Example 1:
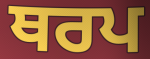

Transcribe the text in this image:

ਥਰਪ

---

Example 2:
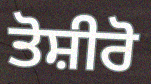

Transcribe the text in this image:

ਤੋਸ਼ੀਰੋ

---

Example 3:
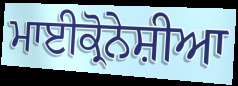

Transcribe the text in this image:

ਮਾਈਕ੍ਰੋਨੇਸ਼ੀਆ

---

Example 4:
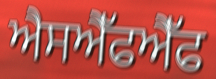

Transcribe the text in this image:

ਐਸਐੱਫਐੱਫ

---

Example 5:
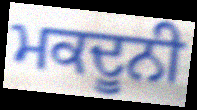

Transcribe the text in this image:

ਮਕਦੂਨੀ